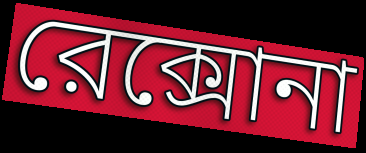
রেক্সোনা